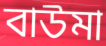
বাউমা